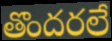
తొందరలే